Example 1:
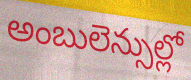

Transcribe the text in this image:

అంబులెన్సుల్లో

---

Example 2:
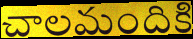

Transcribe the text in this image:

చాలమందికి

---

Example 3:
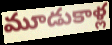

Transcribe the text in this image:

మూడుకాళ్ల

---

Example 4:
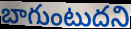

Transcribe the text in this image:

బాగుంటుదని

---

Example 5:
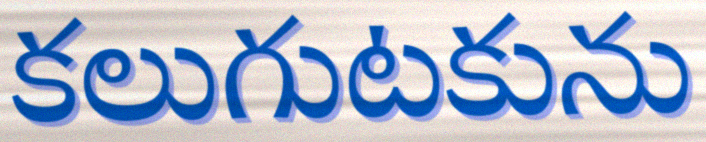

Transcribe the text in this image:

కలుగుటకును